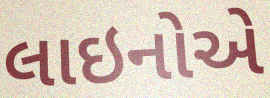
લાઇનોએ